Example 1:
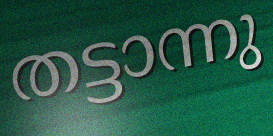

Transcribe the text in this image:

തട്ടാന്നു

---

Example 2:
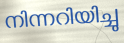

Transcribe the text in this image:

നിന്നറിയിച്ചു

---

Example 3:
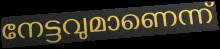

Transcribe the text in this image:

നേട്ടവുമാണെന്ന്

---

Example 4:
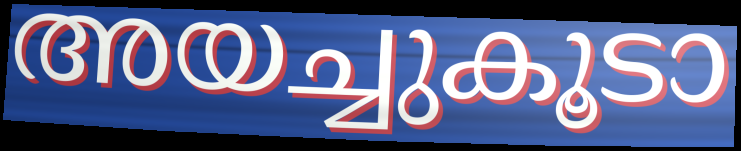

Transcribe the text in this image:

അയച്ചുകൂടാ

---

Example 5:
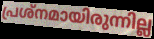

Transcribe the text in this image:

പ്രശ്നമായിരുന്നില്ല